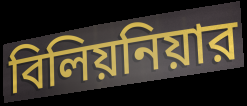
বিলিয়নিয়ার